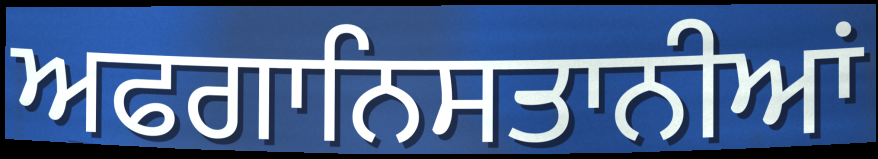
ਅਫਗਾਨਿਸਤਾਨੀਆਂ